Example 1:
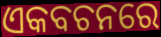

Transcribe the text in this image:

ଏକବଚନରେ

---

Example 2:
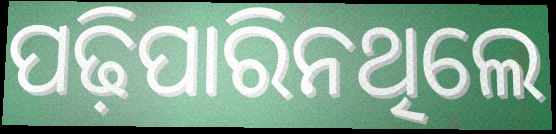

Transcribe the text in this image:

ପଢ଼ିପାରିନଥିଲେ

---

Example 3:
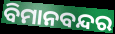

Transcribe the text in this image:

ବିମାନବନ୍ଦର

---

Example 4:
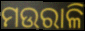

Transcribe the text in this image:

ମଉରାଳି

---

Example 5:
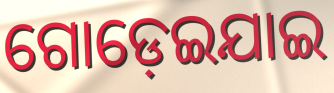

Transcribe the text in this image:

ଗୋଡ଼େଇଯାଇ